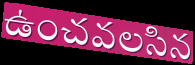
ఉంచవలసిన